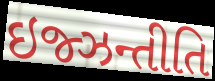
ઇજ્ઝન્તીતિ